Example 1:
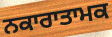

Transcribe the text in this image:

ਨਕਾਰਾਤਾਮਕ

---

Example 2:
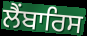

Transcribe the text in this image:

ਲੈਂਬਾਰਿਸ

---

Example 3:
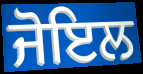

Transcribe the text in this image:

ਜੋਇਲ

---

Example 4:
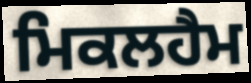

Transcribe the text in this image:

ਮਿਕਲਹੈਮ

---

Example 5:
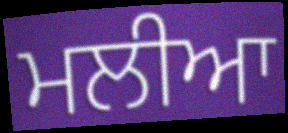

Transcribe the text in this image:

ਮਲੀਆ